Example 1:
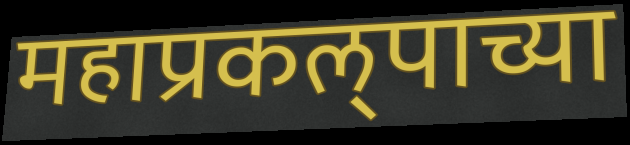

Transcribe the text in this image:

महाप्रकल्पाच्या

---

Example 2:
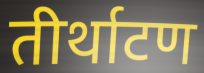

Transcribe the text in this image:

तीर्थाटण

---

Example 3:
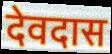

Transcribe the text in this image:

देवदास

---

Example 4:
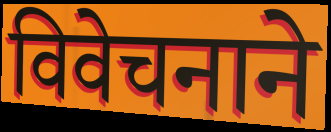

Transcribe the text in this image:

विवेचनाने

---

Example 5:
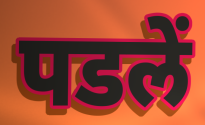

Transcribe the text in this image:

पडलें